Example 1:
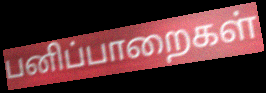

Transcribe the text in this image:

பனிப்பாறைகள்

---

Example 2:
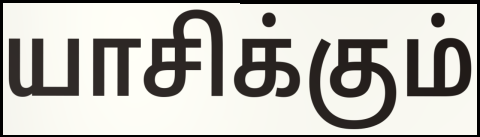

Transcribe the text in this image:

யாசிக்கும்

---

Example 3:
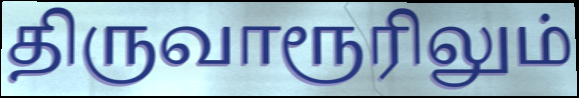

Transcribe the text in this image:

திருவாரூரிலும்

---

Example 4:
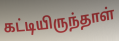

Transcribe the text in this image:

கட்டியிருந்தாள்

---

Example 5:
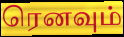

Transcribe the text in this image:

ரெனவும்